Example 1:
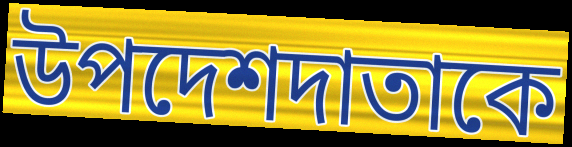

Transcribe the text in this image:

উপদেশদাতাকে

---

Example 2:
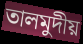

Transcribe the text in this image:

তালমুদীয়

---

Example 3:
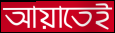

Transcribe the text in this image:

আয়াতেই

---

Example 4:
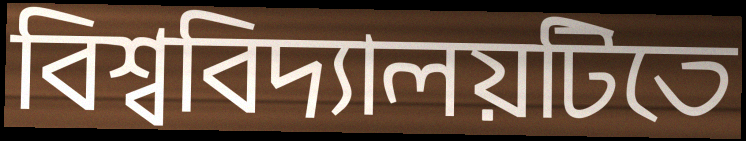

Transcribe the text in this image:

বিশ্ববিদ্যালয়টিতে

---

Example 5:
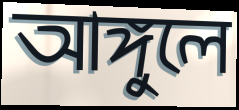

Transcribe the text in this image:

আঙ্গুলে